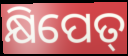
କ୍ଷିପେତ୍